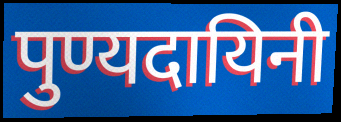
पुण्यदायिनी